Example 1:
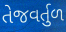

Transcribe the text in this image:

તેજવર્તુળ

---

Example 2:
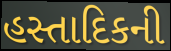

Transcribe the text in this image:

હસ્તાદિકની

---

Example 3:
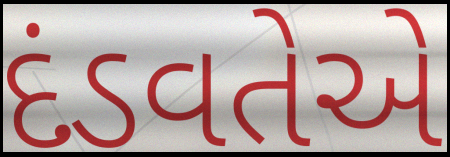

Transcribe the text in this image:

દંડવતેએ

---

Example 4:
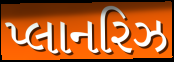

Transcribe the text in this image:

પ્લાનરિઝ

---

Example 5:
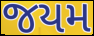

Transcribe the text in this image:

જયમ